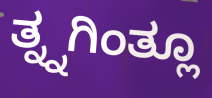
ತ್ನ್ನಗಿಂತ್ಲೂ